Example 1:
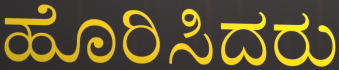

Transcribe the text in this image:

ಹೊರಿಸಿದರು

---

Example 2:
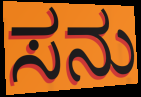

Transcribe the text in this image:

ಸನು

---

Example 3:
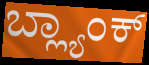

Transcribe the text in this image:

ಬ್ಲ್ಯಾಂಕ್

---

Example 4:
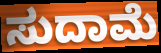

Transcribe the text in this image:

ಸುದಾಮೆ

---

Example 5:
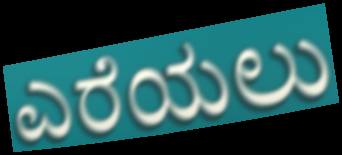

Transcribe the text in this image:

ಎರೆಯಲು